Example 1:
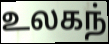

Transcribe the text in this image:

உலகந்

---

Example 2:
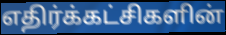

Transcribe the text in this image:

எதிர்க்கட்சிகளின்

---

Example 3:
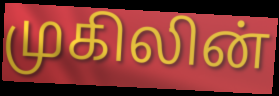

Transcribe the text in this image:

முகிலின்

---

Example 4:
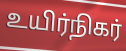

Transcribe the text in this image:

உயிர்நிகர்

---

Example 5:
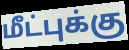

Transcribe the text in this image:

மீட்புக்கு